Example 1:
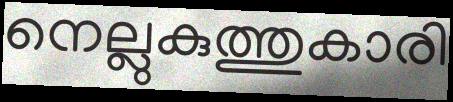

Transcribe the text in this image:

നെല്ലുകുത്തുകാരി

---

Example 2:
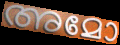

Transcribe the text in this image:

അമോ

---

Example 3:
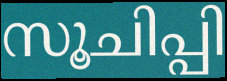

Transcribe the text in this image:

സൂചിപ്പി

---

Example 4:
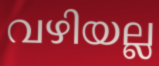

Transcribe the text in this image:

വഴിയല്ല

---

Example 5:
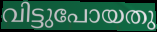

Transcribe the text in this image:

വിട്ടുപോയതു